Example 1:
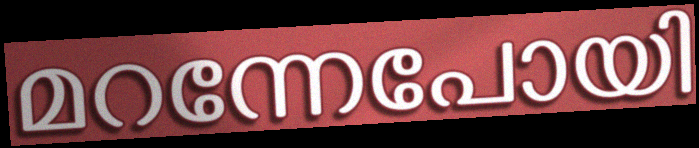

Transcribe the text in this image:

മറന്നേപോയി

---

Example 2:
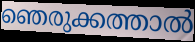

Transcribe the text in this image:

ഞെരുക്കത്താൽ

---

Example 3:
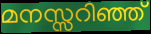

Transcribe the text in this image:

മനസ്സറിഞ്ഞ്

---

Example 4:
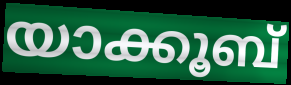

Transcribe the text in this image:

യാക്കൂബ്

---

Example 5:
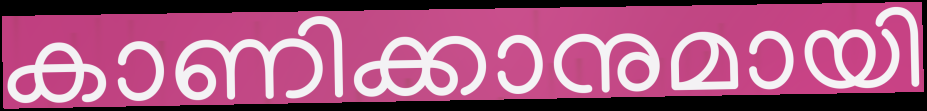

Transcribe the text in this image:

കാണിക്കാനുമായി